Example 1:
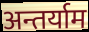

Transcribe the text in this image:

अन्तर्याम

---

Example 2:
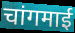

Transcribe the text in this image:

चांगमाई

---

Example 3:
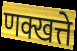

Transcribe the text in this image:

णक्खत्ते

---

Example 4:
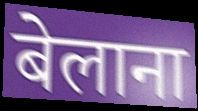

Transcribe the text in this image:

बेलाना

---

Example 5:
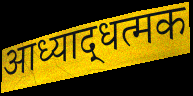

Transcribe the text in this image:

आध्याद्धत्मक